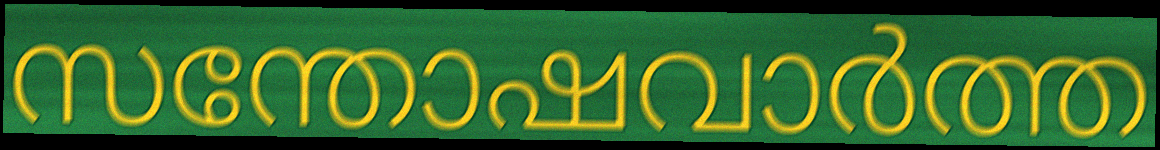
സന്തോഷവാർത്ത